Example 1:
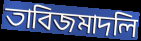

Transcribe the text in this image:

তাবিজমাদলি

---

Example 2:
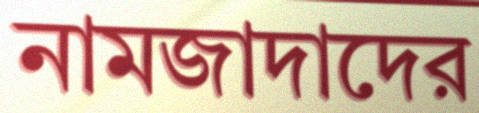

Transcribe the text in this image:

নামজাদাদের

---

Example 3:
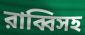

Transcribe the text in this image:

রাব্বিসহ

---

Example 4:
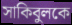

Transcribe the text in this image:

সাকিবুলকে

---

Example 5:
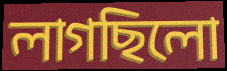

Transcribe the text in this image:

লাগছিলো